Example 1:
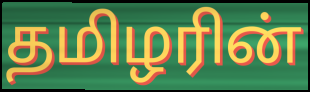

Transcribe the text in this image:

தமிழரின்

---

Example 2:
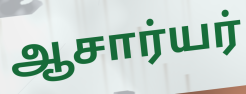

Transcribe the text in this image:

ஆசார்யர்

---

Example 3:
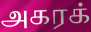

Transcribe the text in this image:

அகரக்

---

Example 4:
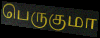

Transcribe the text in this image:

பெருகுமா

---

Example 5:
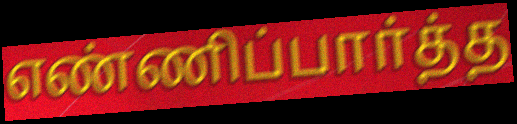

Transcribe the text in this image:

எண்ணிப்பார்த்த